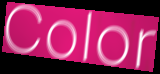
Color